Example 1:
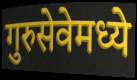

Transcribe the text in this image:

गुरुसेवेमध्ये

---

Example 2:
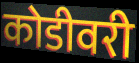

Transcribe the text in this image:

कोडीवरी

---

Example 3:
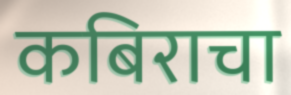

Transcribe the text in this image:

कबिराचा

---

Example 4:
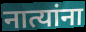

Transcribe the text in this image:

नात्यांना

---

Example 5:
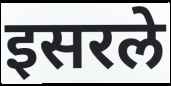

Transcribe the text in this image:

इसरले